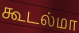
கூடல்மா